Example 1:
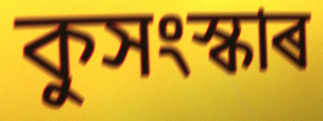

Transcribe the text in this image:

কুসংস্কাৰ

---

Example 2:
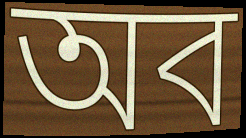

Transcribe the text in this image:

অব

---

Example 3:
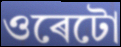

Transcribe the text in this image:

ওৰেটো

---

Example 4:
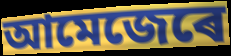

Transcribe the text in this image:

আমেজেৰে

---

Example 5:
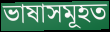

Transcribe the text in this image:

ভাষাসমূহত